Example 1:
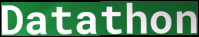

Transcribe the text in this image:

Datathon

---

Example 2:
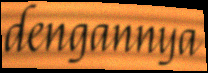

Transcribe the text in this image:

dengannya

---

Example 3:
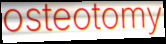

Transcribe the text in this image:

osteotomy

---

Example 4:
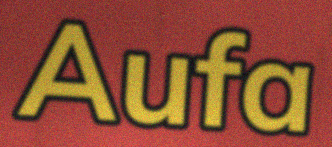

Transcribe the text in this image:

Aufa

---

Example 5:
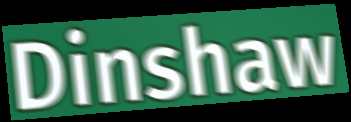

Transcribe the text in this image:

Dinshaw